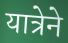
यात्रेने